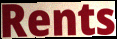
Rents